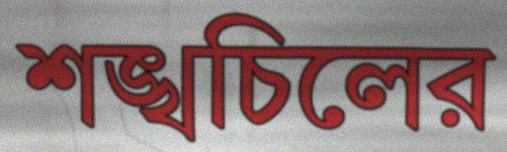
শঙ্খচিলের